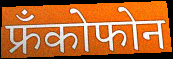
फ्रँकोफोन